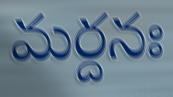
మర్దనః